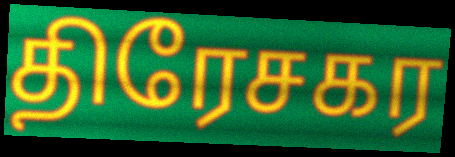
திரேசகர